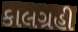
કાલગ્રહી